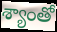
శ్యాంతో